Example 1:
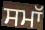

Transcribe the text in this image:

ਸਮਾੱ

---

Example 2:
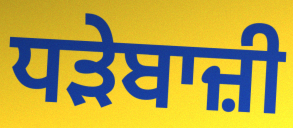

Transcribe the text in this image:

ਧੜੇਬਾਜ਼ੀ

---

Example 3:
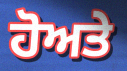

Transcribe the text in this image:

ਹੋਅਤੇ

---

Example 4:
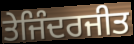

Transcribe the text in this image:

ਤੇਜਿੰਦਰਜੀਤ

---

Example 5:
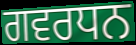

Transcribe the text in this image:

ਗਵਰਧਨ